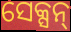
ସେକ୍ସନ୍